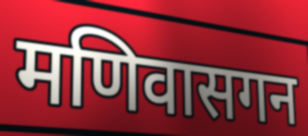
मणिवासगन